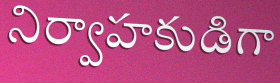
నిర్వాహకుడిగా